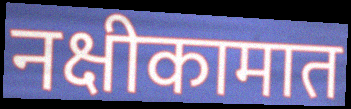
नक्षीकामात